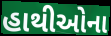
હાથીઓના